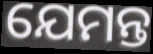
ଯେମନ୍ତ